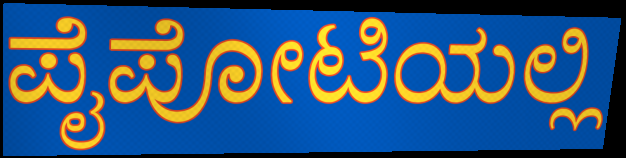
ಪೈಪೋಟಿಯಲ್ಲಿ